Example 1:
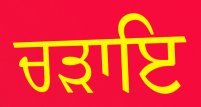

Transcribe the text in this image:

ਚੜਾਇ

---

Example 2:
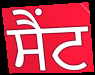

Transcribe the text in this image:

ਸੈਂਟ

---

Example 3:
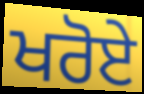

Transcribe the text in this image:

ਖਰੋਏ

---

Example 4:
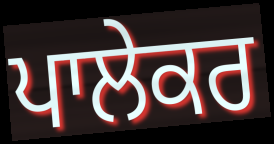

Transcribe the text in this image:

ਪਾਲੇਕਰ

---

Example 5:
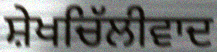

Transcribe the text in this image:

ਸ਼ੇਖਚਿੱਲੀਵਾਦ